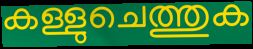
കള്ളുചെത്തുക